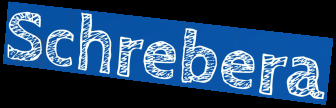
Schrebera